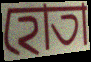
হোতা